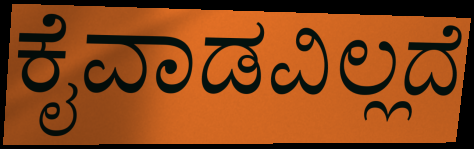
ಕೈವಾಡವಿಲ್ಲದೆ